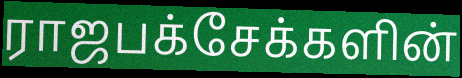
ராஜபக்சேக்களின்